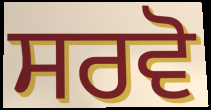
ਸਰਵੋ